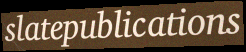
slatepublications